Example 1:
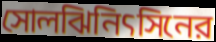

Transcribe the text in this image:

সোলঝিনিৎসিনের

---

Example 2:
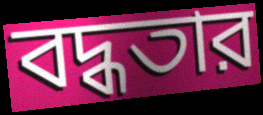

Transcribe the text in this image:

বদ্ধতার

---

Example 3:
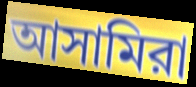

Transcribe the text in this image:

আসামিরা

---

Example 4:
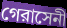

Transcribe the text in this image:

গেরাসেনী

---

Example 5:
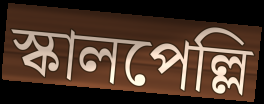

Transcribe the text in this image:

স্কালপেল্লি